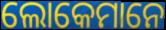
ଲୋକେମାନେ